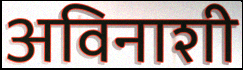
अविनाशी